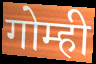
गोम्ही